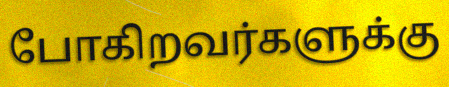
போகிறவர்களுக்கு